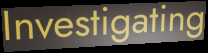
Investigating